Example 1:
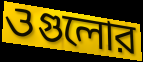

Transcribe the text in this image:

ওগুলোর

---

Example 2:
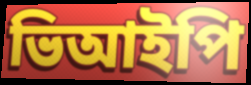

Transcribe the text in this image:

ভিআইপি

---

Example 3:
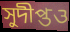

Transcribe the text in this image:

সুদীপ্তও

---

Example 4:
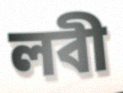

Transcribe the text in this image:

লবী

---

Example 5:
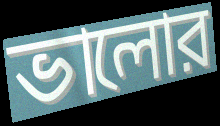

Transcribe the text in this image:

ভালোর